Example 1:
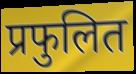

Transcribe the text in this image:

प्रफुलित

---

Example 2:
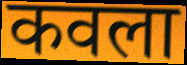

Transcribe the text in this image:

कवला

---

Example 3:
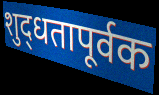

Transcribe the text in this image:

शुद्धतापूर्वक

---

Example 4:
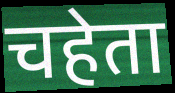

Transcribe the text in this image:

चहेता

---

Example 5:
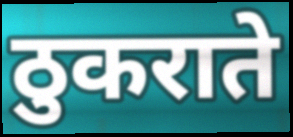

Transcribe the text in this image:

ठुकराते